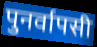
पुनर्वापसी